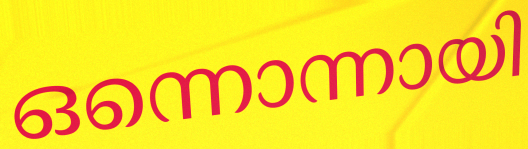
ഒന്നൊന്നായി